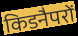
किडनैपरों